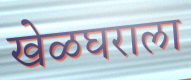
खेळघराला